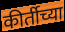
कीर्तीच्या